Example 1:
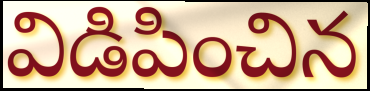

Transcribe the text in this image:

విడిపించిన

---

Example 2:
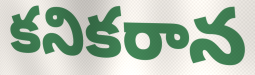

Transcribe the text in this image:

కనికరాన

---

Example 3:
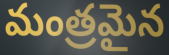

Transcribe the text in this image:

మంత్రమైన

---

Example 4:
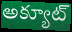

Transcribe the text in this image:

అక్యూట్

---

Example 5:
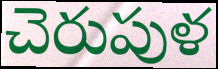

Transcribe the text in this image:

చెరుపుళ